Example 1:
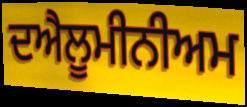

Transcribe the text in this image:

ਦਐਲੂਮੀਨੀਅਮ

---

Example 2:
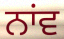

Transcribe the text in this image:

ਨਾਂਵ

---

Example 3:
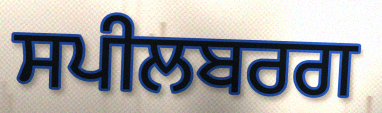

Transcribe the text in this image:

ਸਪੀਲਬਰਗ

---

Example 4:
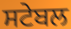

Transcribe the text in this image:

ਸਟੇਬਲ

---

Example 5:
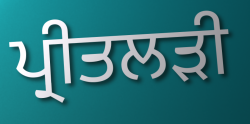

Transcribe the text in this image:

ਪ੍ਰੀਤਲੜੀ